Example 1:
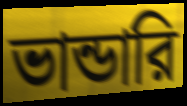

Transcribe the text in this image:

ভান্ডারি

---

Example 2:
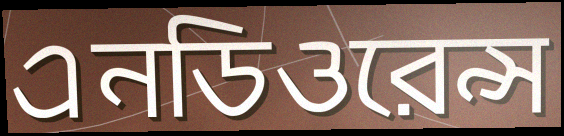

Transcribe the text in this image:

এনডিওরেন্স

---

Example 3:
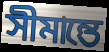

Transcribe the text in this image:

সীমান্তে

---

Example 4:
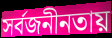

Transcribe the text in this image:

সর্বজনীনতায়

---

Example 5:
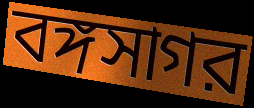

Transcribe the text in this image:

বঙ্গসাগর